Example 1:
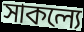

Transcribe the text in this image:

সাকল্যে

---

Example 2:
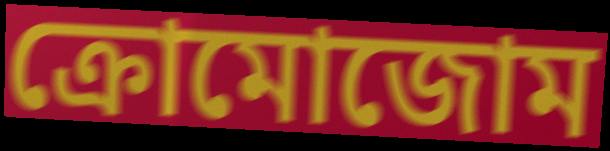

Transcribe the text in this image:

ক্রোমোজোম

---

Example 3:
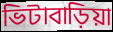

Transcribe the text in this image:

ভিটাবাড়িয়া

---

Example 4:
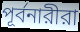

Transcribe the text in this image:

পূর্বনারীরা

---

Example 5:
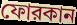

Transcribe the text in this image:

ফোরকান